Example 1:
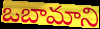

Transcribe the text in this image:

ఒబామాని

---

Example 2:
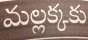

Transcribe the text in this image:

మల్లక్కకు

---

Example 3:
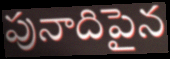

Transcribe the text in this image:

పునాదిపైన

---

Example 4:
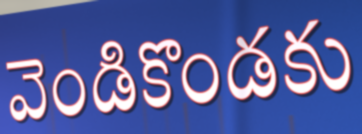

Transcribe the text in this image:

వెండికొండకు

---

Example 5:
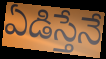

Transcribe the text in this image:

ఏడిస్తేనే